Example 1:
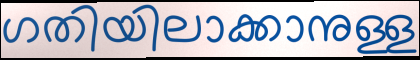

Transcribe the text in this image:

ഗതിയിലാക്കാനുള്ള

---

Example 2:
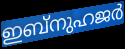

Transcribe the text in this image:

ഇബ്നുഹജർ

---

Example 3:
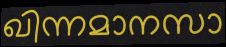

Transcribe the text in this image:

ഖിന്നമാനസാ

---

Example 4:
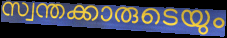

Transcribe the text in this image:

സ്വന്തക്കാരുടെയും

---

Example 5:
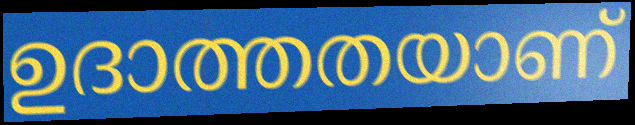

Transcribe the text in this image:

ഉദാത്തതയാണ്